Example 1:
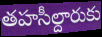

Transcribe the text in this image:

తహసీల్దారుకు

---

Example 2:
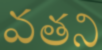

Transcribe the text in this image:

వతని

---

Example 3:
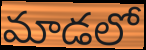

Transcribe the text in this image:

మాడలో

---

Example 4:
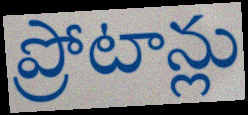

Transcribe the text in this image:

ప్రోటాన్లు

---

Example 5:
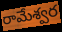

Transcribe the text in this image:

రామేశ్వర